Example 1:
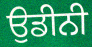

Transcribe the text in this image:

ਉਡੀਨੀ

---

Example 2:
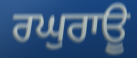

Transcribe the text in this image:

ਰਘੁਰਾਊ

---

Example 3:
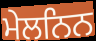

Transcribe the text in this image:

ਮੇਲਨਿਨ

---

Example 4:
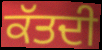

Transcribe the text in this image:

ਕੱਤਦੀ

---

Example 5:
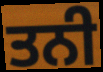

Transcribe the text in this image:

ਤਨੀ